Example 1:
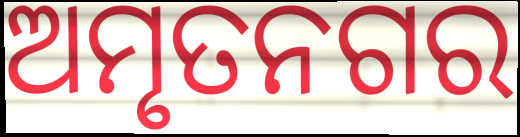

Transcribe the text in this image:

ଅମୃତନଗର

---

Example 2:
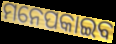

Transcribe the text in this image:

ମନେପକାଇବ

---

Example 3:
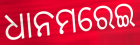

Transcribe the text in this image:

ଧାନମରେଇ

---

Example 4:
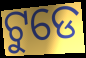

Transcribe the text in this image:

ଟୁଡେ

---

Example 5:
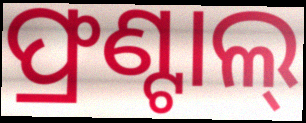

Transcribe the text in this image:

ଫ୍ରଣ୍ଟାଲ୍